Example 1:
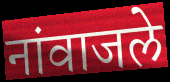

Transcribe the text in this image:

नांवाजले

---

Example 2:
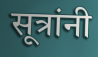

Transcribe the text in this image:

सूत्रांनी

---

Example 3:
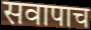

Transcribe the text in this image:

सवापाच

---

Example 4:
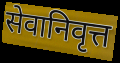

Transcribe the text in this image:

सेवानिवृत्त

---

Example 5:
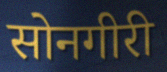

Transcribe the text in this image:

सोनगीरी